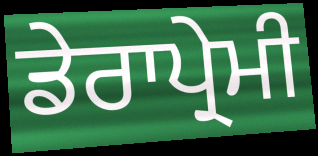
ਡੇਰਾਪ੍ਰੇਮੀ